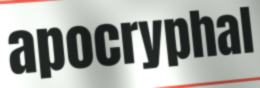
apocryphal